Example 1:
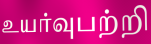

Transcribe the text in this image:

உயர்வுபற்றி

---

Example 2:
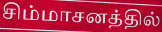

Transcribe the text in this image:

சிம்மாசனத்தில்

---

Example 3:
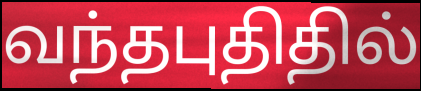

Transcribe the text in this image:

வந்தபுதிதில்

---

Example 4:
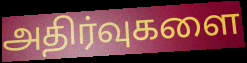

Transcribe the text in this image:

அதிர்வுகளை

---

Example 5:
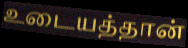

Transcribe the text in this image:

உடையத்தான்